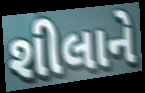
શીલાને